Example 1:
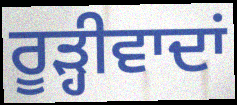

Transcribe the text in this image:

ਰੂੜ੍ਹੀਵਾਦਾਂ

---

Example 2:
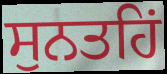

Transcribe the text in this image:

ਸੁਨਤਹਿਂ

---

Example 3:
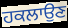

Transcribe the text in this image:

ਹਕਲਾਉਣ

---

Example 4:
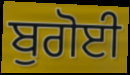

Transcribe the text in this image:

ਬੁਗੋਈ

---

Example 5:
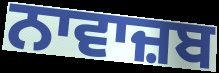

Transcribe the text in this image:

ਨਾਵਾਜ਼ਬ